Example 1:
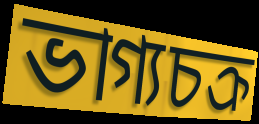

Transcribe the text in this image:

ভাগ্যচক্র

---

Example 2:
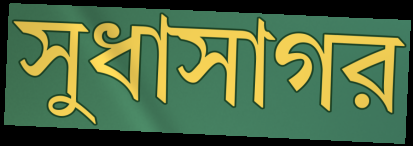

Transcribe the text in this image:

সুধাসাগর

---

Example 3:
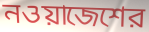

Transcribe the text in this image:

নওয়াজেশের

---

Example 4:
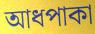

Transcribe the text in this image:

আধপাকা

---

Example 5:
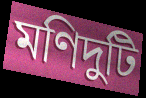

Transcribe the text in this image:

মণিদুটি